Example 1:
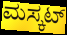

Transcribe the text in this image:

ಮಸ್ಕಟ್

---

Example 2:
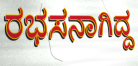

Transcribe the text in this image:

ರಭಸನಾಗಿದ್ದ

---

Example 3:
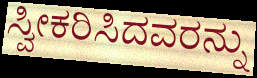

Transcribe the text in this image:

ಸ್ವೀಕರಿಸಿದವರನ್ನು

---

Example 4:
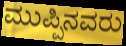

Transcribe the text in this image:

ಮುಪ್ಪಿನವರು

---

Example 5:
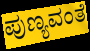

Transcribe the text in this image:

ಪುಣ್ಯವಂತೆ